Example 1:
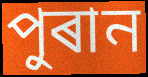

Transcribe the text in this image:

পুৰান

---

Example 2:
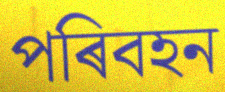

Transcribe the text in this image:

পৰিবহন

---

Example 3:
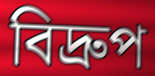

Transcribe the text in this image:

বিদ্ৰুপ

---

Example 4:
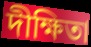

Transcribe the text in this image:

দীক্ষিতা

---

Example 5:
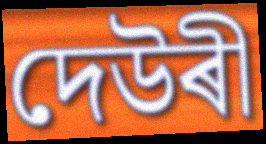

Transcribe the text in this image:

দেউৰী